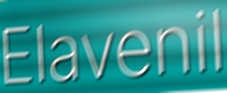
Elavenil